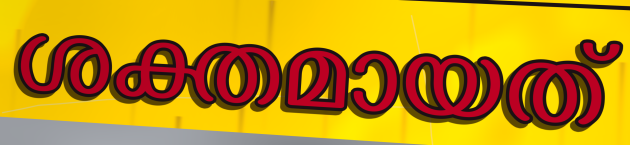
ശക്തമായത്